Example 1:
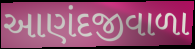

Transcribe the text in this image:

આણંદજીવાળા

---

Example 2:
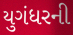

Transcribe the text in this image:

યુગંધરની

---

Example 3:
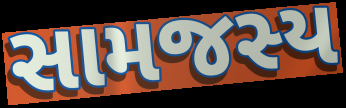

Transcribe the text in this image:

સામજસ્ય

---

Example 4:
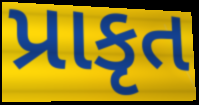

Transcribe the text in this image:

પ્રાકૃત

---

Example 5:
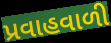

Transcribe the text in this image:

પ્રવાહવાળી